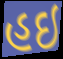
હઇ